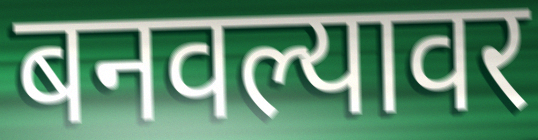
बनवल्यावर